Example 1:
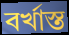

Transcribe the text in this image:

বৰ্খাস্ত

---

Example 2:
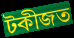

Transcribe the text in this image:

টকীজত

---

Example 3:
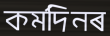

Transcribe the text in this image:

কৰ্মদিনৰ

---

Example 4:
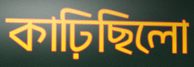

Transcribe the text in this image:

কাঢ়িছিলো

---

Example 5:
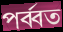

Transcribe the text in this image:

পৰ্ব্বত